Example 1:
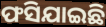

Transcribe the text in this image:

ଫସିଯାଇଛି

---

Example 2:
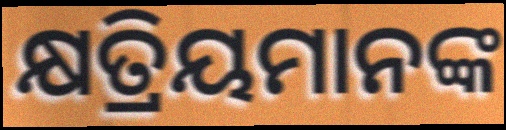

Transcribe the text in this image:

କ୍ଷତ୍ରିୟମାନଙ୍କ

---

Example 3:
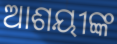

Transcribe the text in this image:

ଆଶୟୀଙ୍କ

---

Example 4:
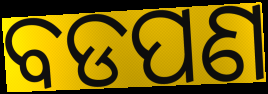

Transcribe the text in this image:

ବଡପଣ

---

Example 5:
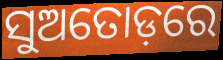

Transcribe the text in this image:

ସୁଅତୋଡ଼ରେ